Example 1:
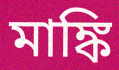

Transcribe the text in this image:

মাঙ্কি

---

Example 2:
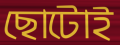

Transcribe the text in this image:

ছোটোই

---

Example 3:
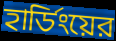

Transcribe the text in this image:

হার্ডিংয়ের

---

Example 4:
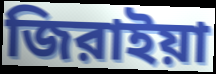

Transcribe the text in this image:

জিরাইয়া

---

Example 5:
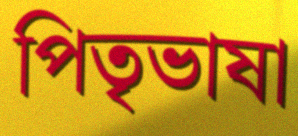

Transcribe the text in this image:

পিতৃভাষা